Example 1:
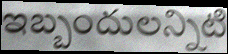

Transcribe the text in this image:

ఇబ్బందులన్నిటి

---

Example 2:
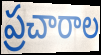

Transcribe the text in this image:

ప్రచారాల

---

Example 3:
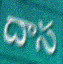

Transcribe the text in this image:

దాస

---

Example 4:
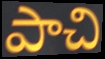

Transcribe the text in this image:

పాచి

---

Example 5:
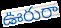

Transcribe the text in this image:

ఊరురా